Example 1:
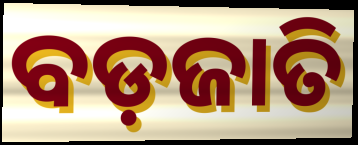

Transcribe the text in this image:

ବଡ଼ଜାତି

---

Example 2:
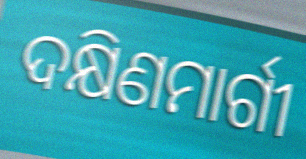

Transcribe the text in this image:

ଦକ୍ଷିଣମାର୍ଗୀ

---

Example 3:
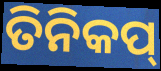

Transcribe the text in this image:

ତିନିକପ୍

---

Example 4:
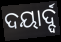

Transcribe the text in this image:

ଦୟାର୍ଦ୍ଦ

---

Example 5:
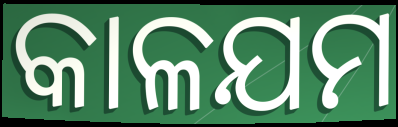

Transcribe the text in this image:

କାଳଯମ